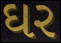
ઘર